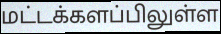
மட்டக்களப்பிலுள்ள